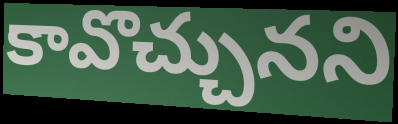
కావొచ్చునని